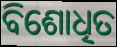
ବିଶୋଧିତ